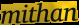
mithan